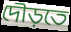
দৌড়তে